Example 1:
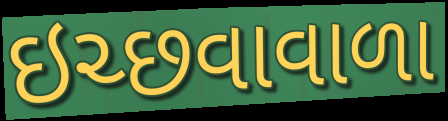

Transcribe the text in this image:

ઇચ્છવાવાળા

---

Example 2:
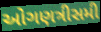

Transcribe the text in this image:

ઓગણત્રીસમી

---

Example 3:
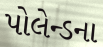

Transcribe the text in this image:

પોલેન્ડના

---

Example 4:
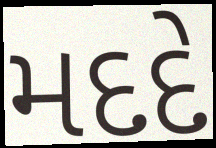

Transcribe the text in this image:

મદદે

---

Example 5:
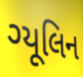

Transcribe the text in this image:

ગ્યૂલિન